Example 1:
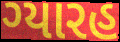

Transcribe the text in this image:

ગ્યારહ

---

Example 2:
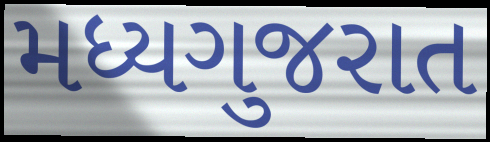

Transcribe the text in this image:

મધ્યગુજરાત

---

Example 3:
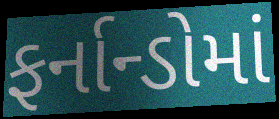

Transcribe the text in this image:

ફર્નાન્ડોમાં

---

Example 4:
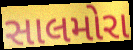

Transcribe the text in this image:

સાલમોરા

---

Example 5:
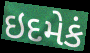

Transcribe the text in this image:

ઇદમેકં